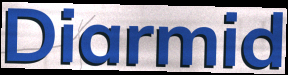
Diarmid